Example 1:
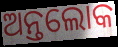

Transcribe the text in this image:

ଅନ୍ତଲୋକ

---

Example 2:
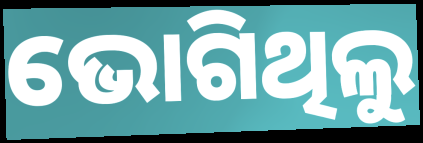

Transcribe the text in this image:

ଭୋଗିଥିଲୁ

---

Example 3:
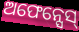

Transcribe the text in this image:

ଅଫେନ୍ସେସ୍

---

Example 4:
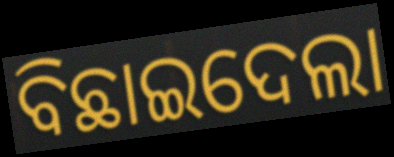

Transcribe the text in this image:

ବିଛାଇଦେଲା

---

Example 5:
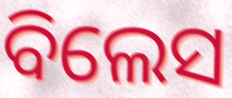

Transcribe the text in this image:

ବିଲେସ